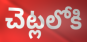
చెట్లలోకి